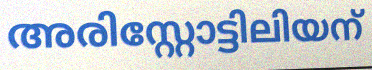
അരിസ്റ്റോട്ടിലിയന്